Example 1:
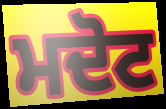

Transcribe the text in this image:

ਮਦੋਟ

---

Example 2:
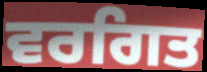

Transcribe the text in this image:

ਵਰਗਿਤ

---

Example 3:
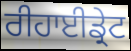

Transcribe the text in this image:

ਰੀਹਾਈਡ੍ਰੇਟ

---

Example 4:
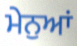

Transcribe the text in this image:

ਮੇਨੁਆਂ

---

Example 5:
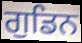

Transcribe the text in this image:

ਗੁਡਿਨ